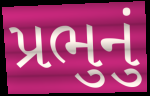
પ્રભુનું